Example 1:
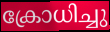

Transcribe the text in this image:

ക്രോധിച്ചു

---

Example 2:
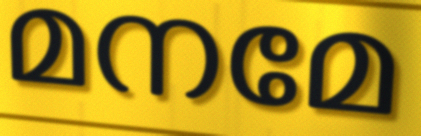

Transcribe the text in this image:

മനമേ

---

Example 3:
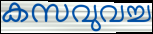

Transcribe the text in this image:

കസവുവച്ച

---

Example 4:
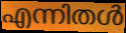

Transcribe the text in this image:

എന്നിതൾ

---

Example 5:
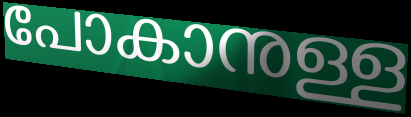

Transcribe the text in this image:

പോകാനുള്ള